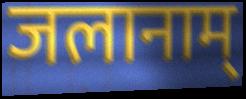
जलानाम्